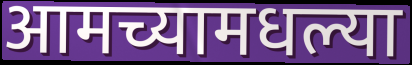
आमच्यामधल्या